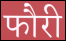
फौरी